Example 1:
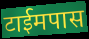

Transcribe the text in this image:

टाईमपास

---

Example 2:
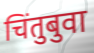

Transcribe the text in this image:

चिंतुबुवा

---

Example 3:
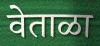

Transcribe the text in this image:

वेताळा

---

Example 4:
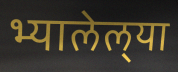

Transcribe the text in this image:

भ्यालेल्या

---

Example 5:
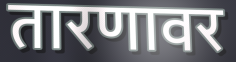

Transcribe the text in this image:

तारणावर